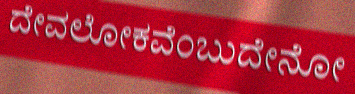
ದೇವಲೋಕವೆಂಬುದೇನೋ